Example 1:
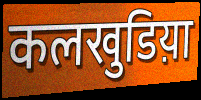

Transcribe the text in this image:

कलखुडिय़ा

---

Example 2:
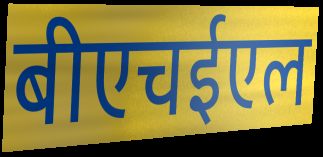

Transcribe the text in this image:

बीएचईएल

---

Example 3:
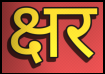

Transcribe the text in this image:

क्षर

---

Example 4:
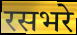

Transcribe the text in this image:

रसभरे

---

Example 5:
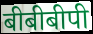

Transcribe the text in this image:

बीबीबीपी